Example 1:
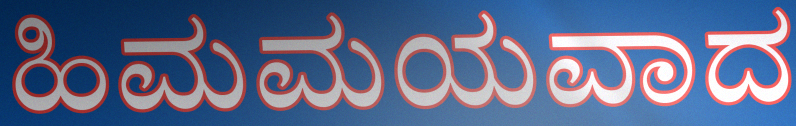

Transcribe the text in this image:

ಹಿಮಮಯವಾದ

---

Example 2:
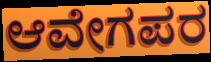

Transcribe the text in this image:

ಆವೇಗಪರ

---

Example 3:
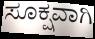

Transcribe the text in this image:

ಸೂಕ್ಷವಾಗಿ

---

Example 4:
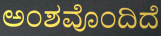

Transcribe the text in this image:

ಅಂಶವೊಂದಿದೆ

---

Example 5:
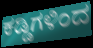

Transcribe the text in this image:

ಕಡ್ಡಿಗಳಿಂದ